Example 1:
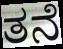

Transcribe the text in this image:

ತನೆ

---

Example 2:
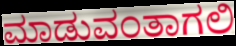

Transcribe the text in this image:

ಮಾಡುವಂತಾಗಲಿ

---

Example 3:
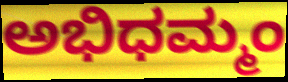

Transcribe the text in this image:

ಅಭಿಧಮ್ಮಂ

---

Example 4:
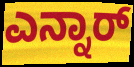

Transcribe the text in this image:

ಎನ್ನಾರ್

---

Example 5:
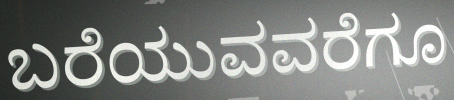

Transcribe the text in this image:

ಬರೆಯುವವರೆಗೂ